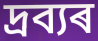
দ্ৰব্যৰ